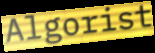
Algorist